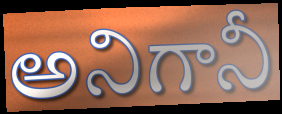
అనిగానీ